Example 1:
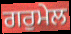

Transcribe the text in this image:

ਗਰੁਮੇਲ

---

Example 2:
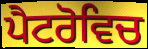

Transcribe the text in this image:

ਪੈਟਰੋਵਿਚ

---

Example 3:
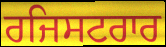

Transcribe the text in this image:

ਰਜਿਸਟਰਾਰ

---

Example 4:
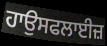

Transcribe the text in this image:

ਹਾਉਸਫਲਾਈਜ਼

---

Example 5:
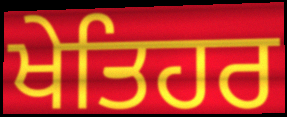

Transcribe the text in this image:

ਖੇਤਿਹਰ